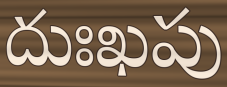
దుఃఖపు